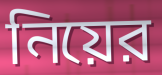
নিয়ের